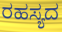
ರಹಸ್ಯದ